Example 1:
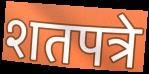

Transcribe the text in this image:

शतपत्रे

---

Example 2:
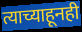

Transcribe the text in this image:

त्याच्याहूनही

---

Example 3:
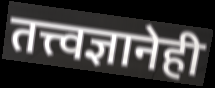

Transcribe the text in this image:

तत्त्वज्ञानेही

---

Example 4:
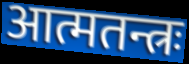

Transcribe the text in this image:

आत्मतन्त्रः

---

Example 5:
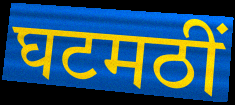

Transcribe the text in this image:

घटमठीं